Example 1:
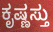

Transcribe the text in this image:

ಕೃಷ್ಣಸ್ತು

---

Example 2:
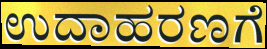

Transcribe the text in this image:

ಉದಾಹರಣಗೆ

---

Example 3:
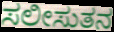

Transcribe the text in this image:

ಸಲೀಸುತನ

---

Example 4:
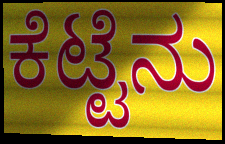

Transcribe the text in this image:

ಕೆಟ್ಟೆನು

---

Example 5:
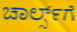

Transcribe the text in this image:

ಚಾರ್ಲ್ಸ್‌ಗೆ